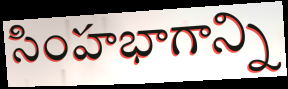
సింహభాగాన్ని